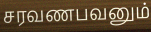
சரவணபவனும்